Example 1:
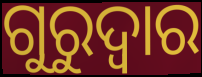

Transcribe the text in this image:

ଗୁରୁଦ୍ଵାର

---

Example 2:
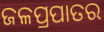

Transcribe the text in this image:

ଜଳପ୍ରପାତର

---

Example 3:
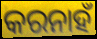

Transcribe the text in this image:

କରନାହଁ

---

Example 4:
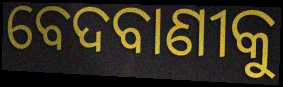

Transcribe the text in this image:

ବେଦବାଣୀକୁ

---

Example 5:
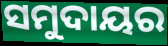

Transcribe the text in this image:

ସମୁଦାୟର